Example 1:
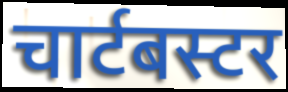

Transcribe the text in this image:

चार्टबस्टर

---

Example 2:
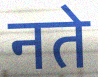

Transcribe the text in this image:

नते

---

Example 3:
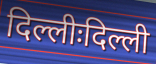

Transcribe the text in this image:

दिल्लीःदिल्ली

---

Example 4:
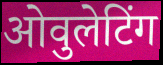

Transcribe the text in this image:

ओवुलेटिंग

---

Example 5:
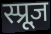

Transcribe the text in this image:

स्प्रूज़